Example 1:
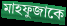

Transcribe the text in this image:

মাহফুজাকে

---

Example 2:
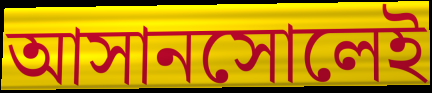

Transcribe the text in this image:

আসানসোলেই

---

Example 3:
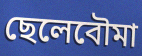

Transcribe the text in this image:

ছেলেবৌমা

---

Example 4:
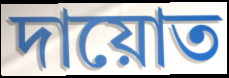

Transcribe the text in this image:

দায়োত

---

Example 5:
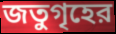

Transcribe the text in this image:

জতুগৃহের